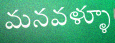
మనవళ్ళూ